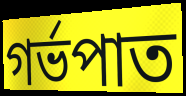
গৰ্ভপাত